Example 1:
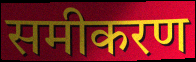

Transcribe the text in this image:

समीकरण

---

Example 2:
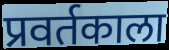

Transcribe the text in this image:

प्रवर्तकाला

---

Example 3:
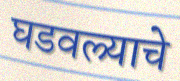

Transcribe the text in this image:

घडवल्याचे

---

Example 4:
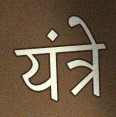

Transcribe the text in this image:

यंत्रे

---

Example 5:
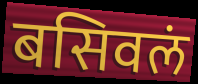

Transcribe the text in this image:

बसिवलं